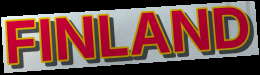
FINLAND